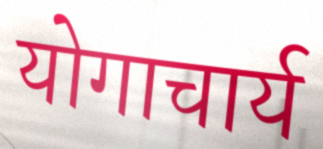
योगाचार्य